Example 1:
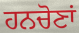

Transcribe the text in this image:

ਹਨਚੋਣਾਂ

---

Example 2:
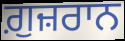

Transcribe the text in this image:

ਗ਼ੁਜ਼ਰਾਨ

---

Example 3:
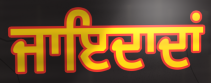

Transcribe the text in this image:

ਜਾਇਦਾਦਾਂ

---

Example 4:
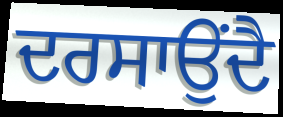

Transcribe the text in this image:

ਦਰਸਾਉਂਦੈ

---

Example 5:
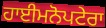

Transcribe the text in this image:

ਹਾਈਮਨੋਪਟੇਰਾ